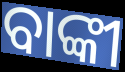
ବାଙ୍କୀ